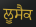
ਲੂਸੈਕ